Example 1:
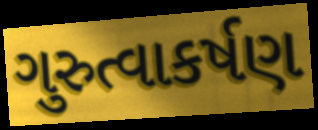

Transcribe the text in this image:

ગુરુત્વાકર્ષણ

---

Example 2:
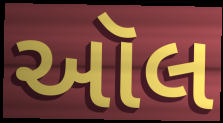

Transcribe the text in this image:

ઑલ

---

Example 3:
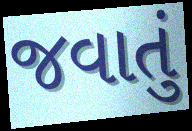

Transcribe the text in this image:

જવાતું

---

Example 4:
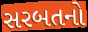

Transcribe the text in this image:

સરબતનો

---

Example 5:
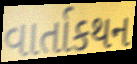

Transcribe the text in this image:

વાર્તાકથન